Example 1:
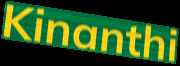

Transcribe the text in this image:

Kinanthi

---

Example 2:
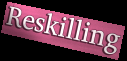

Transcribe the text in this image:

Reskilling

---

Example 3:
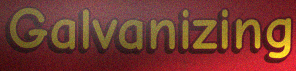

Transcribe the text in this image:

Galvanizing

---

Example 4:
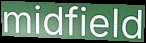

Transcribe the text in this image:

midfield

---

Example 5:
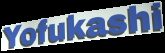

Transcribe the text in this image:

Yofukashi